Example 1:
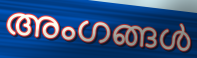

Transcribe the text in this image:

അംഗങ്ങൾ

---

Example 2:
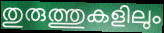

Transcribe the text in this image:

തുരുത്തുകളിലും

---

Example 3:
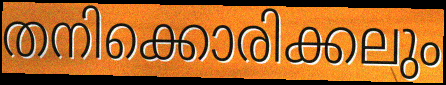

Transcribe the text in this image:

തനിക്കൊരിക്കലും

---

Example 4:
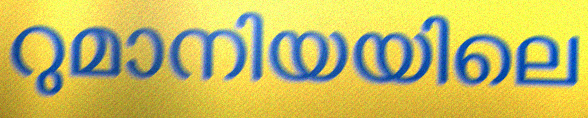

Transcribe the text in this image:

റുമാനിയയിലെ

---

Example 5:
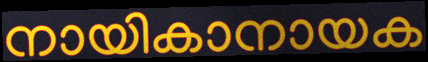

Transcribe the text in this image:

നായികാനായക